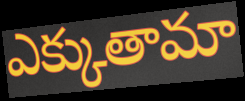
ఎక్కుతామా